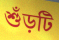
শুঁড়টি